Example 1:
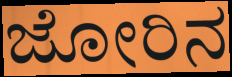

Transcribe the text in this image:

ಜೋರಿನ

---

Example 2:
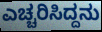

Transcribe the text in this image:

ಎಚ್ಚರಿಸಿದ್ದನು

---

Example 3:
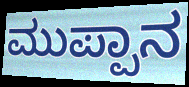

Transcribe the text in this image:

ಮುಪ್ಪಾನ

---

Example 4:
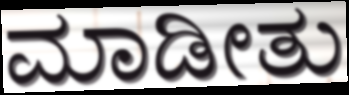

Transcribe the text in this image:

ಮಾಡೀತು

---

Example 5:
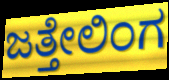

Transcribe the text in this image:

ಜತ್ತೇಲಿಂಗ